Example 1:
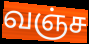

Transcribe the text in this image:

வஞ்ச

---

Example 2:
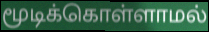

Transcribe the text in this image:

மூடிக்கொள்ளாமல்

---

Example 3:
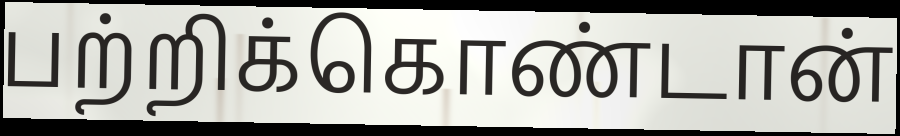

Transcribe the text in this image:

பற்றிக்கொண்டான்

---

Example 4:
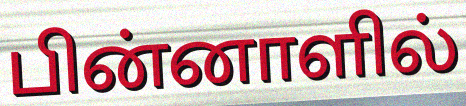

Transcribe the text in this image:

பின்னாளில்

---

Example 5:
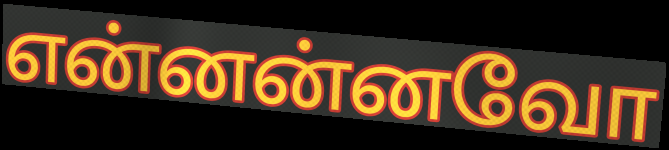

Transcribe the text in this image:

என்னன்னவோ